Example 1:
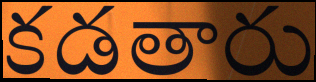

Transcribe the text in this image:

కడతారు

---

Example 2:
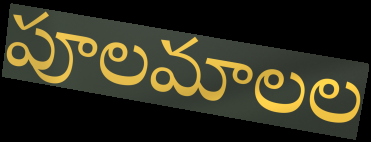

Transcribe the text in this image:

పూలమాలల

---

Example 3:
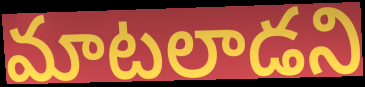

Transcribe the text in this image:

మాటలాడని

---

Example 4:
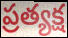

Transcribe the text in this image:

ప్రత్యక్ష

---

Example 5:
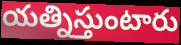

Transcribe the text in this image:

యత్నిస్తుంటారు